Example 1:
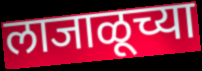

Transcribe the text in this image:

लाजाळूच्या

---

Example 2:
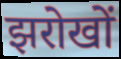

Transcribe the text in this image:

झरोखों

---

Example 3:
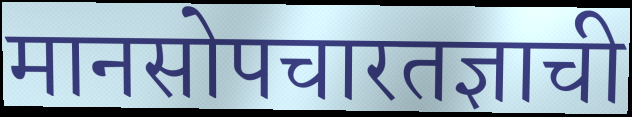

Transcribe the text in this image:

मानसोपचारतज्ञाची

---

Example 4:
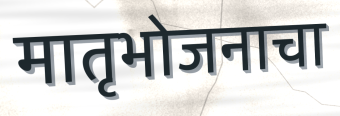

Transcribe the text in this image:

मातृभोजनाचा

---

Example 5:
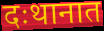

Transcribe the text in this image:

दःथानात